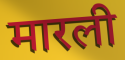
मारली